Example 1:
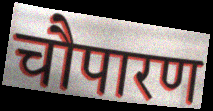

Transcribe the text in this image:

चौपारण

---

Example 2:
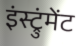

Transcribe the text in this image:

इंस्ट्रुंमेंट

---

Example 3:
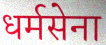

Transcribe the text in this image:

धर्मसेना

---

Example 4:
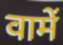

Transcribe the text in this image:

वामें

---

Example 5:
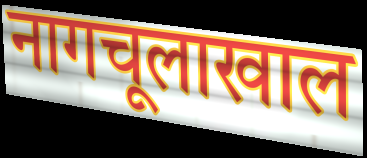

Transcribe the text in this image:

नागचूलाखाल